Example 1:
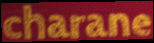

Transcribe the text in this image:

charane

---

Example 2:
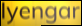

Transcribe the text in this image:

Iyengar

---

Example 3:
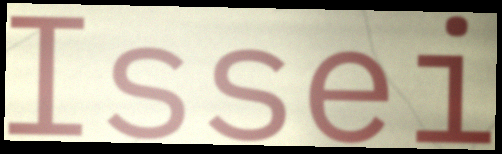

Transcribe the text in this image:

Issei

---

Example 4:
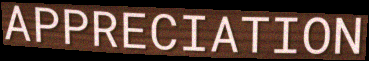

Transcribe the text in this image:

APPRECIATION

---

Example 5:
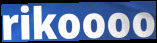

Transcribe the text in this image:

rikoooo